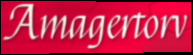
Amagertorv